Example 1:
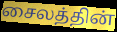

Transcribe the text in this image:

சைலத்தின்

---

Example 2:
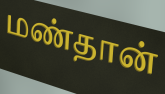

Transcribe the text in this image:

மண்தான்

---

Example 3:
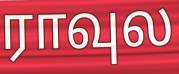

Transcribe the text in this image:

ராவுல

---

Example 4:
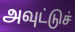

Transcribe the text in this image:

அவுட்டுச்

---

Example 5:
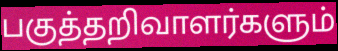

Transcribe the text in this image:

பகுத்தறிவாளர்களும்